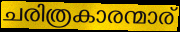
ചരിത്രകാരന്മാര്